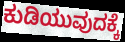
ಕುಡಿಯುವುದಕ್ಕೆ